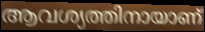
ആവശ്യത്തിനായാണ്